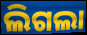
ଲିଗଲା